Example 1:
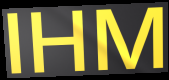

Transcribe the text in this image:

IHM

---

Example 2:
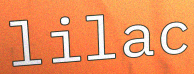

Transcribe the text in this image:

lilac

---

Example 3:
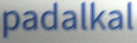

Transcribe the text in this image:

padalkal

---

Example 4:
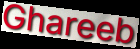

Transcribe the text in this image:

Ghareeb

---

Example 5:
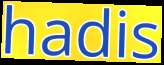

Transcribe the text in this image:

hadis